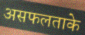
असफलताके